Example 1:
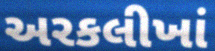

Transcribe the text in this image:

અરકલીખાં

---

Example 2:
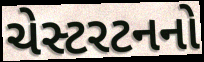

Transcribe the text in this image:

ચેસ્ટરટનનો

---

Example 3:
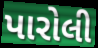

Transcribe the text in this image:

પારોલી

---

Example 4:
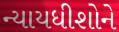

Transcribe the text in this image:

ન્યાયધીશોને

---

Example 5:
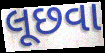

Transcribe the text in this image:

લૂછવા